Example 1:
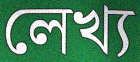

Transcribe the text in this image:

লেখ্য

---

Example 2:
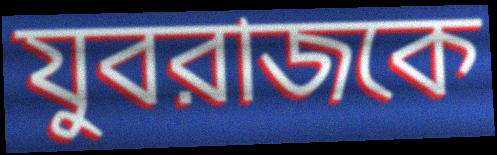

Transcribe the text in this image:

যুবরাজকে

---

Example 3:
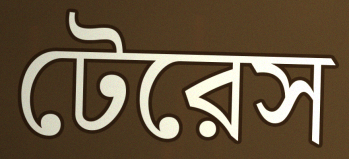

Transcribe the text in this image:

টেরেস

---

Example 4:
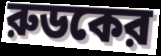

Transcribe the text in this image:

রুডকের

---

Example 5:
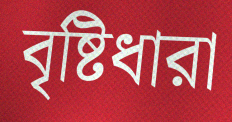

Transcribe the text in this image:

বৃষ্টিধারা